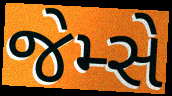
જેમ્સે